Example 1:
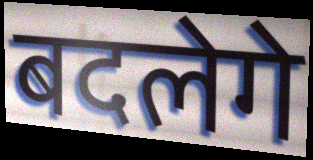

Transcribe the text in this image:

बदलेगे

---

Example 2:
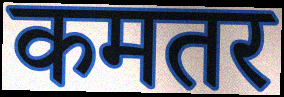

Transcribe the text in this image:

कमतर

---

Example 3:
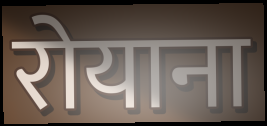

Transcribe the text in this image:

रोयाना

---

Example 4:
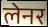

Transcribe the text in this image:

लेनर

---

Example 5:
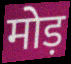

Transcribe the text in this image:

मोड़